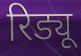
रिड्यू